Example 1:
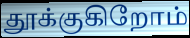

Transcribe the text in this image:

தூக்குகிறோம்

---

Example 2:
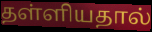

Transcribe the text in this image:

தள்ளியதால்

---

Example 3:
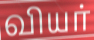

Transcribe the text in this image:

வியர்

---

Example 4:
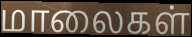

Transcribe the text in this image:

மாலைகள்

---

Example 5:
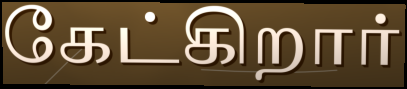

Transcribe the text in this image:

கேட்கிறார்